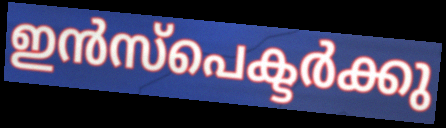
ഇൻസ്പെക്ടർക്കു